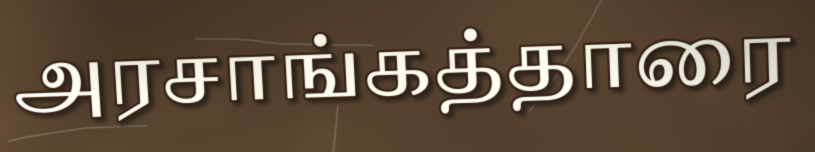
அரசாங்கத்தாரை